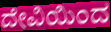
ದೇವಿಯಿಂದ